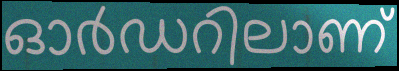
ഓർഡറിലാണ്